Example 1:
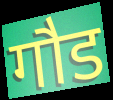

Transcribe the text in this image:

गौड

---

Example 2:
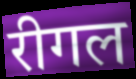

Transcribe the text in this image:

रीगल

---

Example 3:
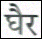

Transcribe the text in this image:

घैर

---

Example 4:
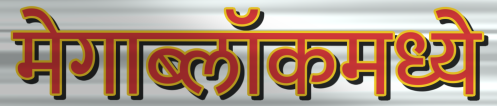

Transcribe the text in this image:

मेगाब्लॉकमध्ये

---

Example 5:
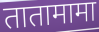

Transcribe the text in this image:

तातामामा